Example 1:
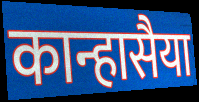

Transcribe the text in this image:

कान्हासैया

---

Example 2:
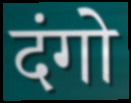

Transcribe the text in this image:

दंगो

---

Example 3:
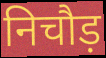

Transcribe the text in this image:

निचौड़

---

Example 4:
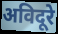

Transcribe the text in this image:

अविदूरे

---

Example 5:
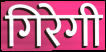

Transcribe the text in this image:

गिरेगी